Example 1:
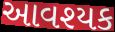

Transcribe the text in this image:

આવશ્યક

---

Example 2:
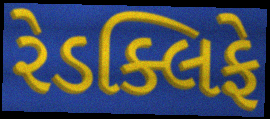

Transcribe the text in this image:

રેડક્લિફે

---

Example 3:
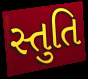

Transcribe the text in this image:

સ્તુતિ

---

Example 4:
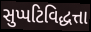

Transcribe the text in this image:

સુપ્પટિવિદ્ધત્તા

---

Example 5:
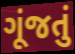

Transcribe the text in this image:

ગૂંજતું